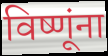
विष्णूंना